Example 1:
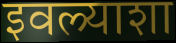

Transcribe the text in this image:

इवल्याशा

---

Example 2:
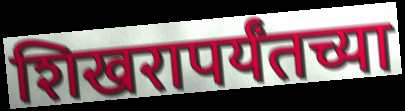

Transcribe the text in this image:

शिखरापर्यंतच्या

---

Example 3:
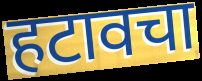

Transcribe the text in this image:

हटावचा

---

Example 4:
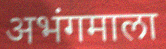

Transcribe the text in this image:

अभंगमाला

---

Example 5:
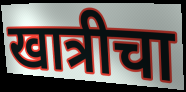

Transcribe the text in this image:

खात्रीचा